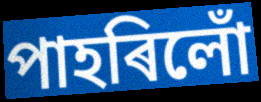
পাহৰিলোঁ